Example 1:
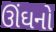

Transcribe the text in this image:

ઊંઘનો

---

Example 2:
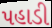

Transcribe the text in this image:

પહાડી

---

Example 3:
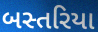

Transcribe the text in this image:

બસ્તરિયા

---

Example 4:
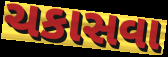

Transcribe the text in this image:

ચકાસવા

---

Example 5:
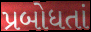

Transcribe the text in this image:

પ્રબોધતાં